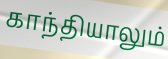
காந்தியாலும்